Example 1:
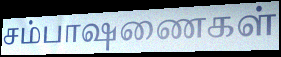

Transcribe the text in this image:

சம்பாஷணைகள்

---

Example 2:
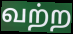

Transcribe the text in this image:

வற்ற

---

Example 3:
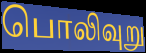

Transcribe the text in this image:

பொலிவுறு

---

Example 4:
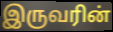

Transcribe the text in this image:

இருவரின்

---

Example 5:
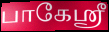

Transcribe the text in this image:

பாகேஸ்ரீ